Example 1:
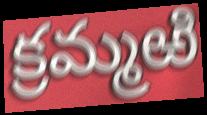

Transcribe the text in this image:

క్రమ్మఱి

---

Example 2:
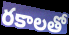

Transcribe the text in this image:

రకాలతో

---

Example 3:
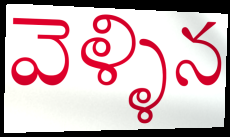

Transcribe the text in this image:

వెళ్ళిన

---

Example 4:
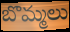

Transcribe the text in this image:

బొమ్మలు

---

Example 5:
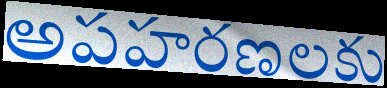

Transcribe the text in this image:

అపహరణలకు